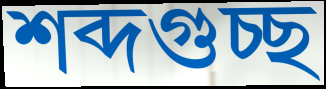
শব্দগুচ্ছ